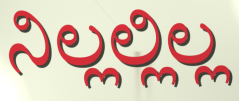
ನಿಲ್ಲಲ್ಲಿಲ್ಲ